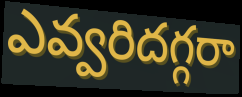
ఎవ్వరిదగ్గరా